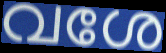
വശേ